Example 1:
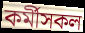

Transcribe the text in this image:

কৰ্মীসকল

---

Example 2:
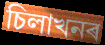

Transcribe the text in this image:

চিলাখনৰ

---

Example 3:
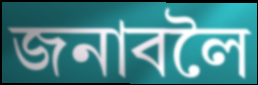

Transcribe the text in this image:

জনাবলৈ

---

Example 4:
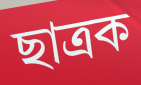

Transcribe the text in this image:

ছাত্ৰক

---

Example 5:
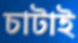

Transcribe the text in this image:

চাটাই